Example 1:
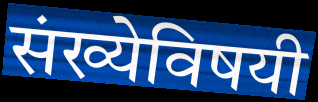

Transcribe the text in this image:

संख्येविषयी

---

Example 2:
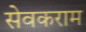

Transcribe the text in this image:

सेवकराम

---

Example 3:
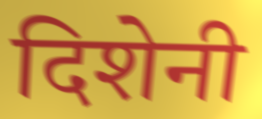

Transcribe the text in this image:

दिशेनी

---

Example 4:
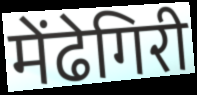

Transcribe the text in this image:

मेंढेगिरी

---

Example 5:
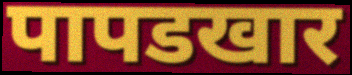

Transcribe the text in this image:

पापडखार